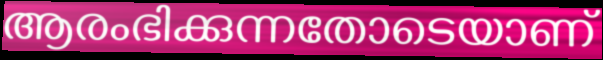
ആരംഭിക്കുന്നതോടെയാണ്